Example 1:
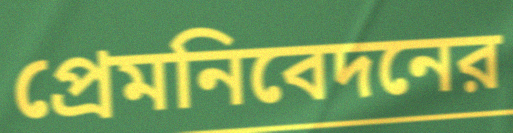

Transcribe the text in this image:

প্রেমনিবেদনের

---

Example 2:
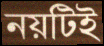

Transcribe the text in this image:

নয়টিই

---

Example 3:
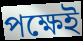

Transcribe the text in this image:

পক্ষেই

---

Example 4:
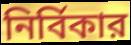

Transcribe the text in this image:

নির্বিকার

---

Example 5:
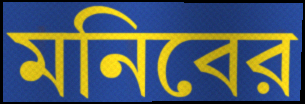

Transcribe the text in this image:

মনিবের